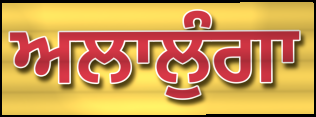
ਅਲਾਲੁੰਗਾ